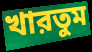
খারতুম